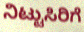
ನಿಟ್ಟುಸಿರಿಗೆ